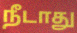
நீடாது